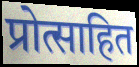
प्रोत्‍साहित